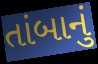
તાંબાનું